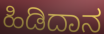
ಹಿಡಿದಾನ